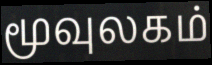
மூவுலகம்